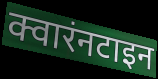
क्वारंनटाइन